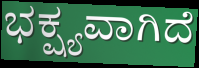
ಭಕ್ಷ್ಯವಾಗಿದೆ